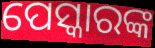
ପେସ୍କାରଙ୍କ